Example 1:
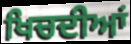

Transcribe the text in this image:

ਖਿਚਦੀਆਂ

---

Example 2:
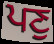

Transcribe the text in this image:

ਪਣੁ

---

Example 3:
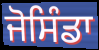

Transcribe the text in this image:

ਜੋਸਿੰਡਾ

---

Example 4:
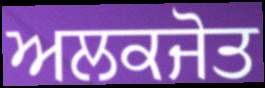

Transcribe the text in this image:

ਅਲਕਜੋਤ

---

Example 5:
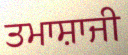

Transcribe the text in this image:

ਤਮਾਸ਼ਾਜੀ